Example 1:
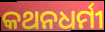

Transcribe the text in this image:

କଥନଧର୍ମୀ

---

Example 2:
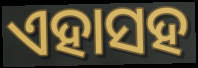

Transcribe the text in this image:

ଏହାସହ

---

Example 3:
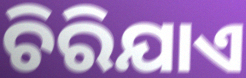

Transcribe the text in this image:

ଚିରିଯାଏ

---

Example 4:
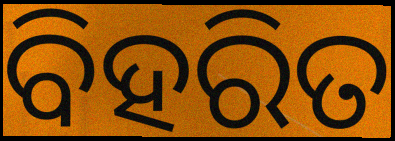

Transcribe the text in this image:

ବିହରିତ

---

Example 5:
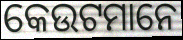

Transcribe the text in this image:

କେଉଟମାନେ